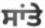
ਸਾਂਤੇ